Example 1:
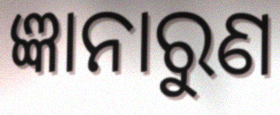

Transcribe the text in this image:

ଜ୍ଞାନାରୁଣ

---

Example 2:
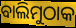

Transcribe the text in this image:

ବାଲିମୁଠାକ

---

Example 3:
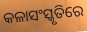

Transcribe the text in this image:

କଳାସଂସ୍କୃତିରେ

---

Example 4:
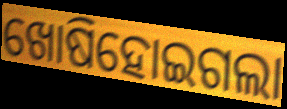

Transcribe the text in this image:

ଖୋଷିହୋଇଗଲା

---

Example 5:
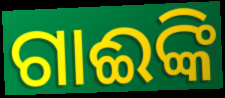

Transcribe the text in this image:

ଗାଈଙ୍କି